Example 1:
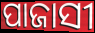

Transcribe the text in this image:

ପାଜାସୀ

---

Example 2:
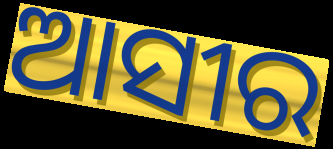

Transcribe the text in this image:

ଆସୀର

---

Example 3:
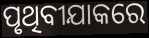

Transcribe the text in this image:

ପୃଥିବୀଯାକରେ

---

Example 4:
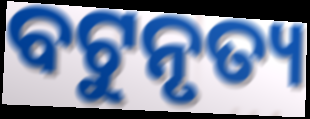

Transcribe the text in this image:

ବଟୁନୃତ୍ୟ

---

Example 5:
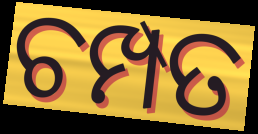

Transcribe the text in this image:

ଚମ୍ପତ